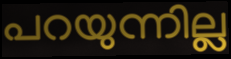
പറയുന്നില്ല